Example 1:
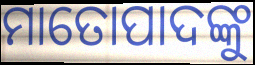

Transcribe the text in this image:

ମାତୋପାଦଙ୍କୁ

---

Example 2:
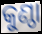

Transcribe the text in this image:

କୁଣ୍ଠା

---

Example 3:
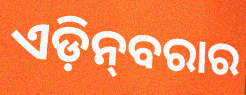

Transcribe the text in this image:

ଏଡ଼ିନ୍‍ବରାର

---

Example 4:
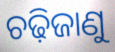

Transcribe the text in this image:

ଚଢ଼ିଜାଣୁ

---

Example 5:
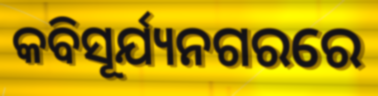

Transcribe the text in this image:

କବିସୂର୍ଯ୍ୟନଗରରେ